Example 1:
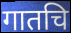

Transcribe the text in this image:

गातचि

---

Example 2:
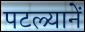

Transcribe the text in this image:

पटल्यानें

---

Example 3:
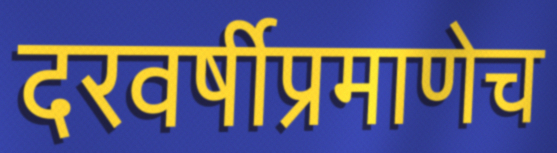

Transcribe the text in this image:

दरवर्षीप्रमाणेच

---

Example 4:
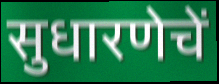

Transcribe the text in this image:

सुधारणेचें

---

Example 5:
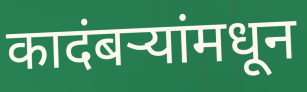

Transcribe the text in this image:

कादंबर्‍यांमधून